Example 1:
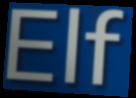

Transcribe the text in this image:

Elf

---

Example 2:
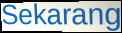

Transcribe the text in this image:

Sekarang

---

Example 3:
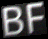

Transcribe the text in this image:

BF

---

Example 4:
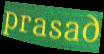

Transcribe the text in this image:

prasad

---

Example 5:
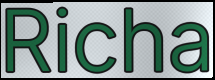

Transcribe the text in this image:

Richa